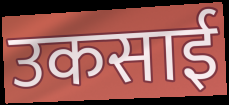
उकसाई